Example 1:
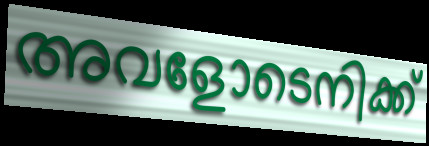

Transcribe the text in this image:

അവളോടെനിക്ക്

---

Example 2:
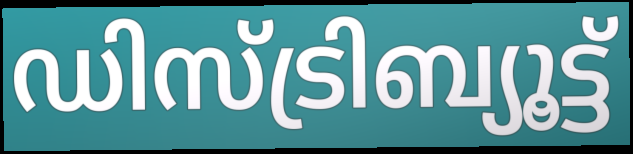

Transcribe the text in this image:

ഡിസ്ട്രിബ്യൂട്ട്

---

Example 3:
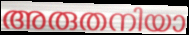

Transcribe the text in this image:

അരുതനിയാ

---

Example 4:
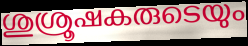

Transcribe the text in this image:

ശുശ്രൂഷകരുടെയും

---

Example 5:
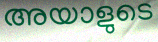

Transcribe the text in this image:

അയാളുടെ